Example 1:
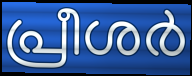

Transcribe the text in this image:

പ്രീശർ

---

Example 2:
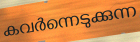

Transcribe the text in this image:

കവർന്നെടുക്കുന്ന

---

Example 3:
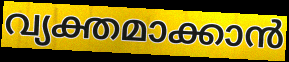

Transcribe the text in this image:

വ്യക്തമാക്കാൻ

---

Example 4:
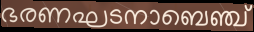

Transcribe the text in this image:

ഭരണഘടനാബെഞ്ച്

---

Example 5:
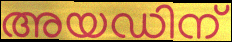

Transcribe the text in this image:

അയഡിന്